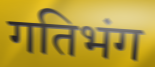
गतिभंग